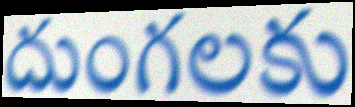
దుంగలకు